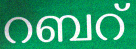
റബറ്